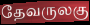
தேவருலகு